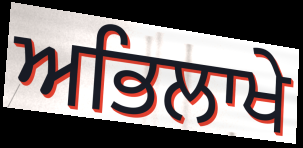
ਅਭਿਲਾਖੇ